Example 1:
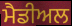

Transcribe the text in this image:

ਮੈਡੀਅਲ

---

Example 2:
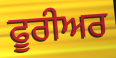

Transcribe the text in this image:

ਫੂਰੀਅਰ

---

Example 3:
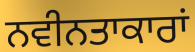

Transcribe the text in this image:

ਨਵੀਨਤਾਕਾਰਾਂ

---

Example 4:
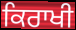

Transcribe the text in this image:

ਕਿਰਾਖੀ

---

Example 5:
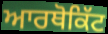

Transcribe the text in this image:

ਆਰਥੋਕਿੱਟ